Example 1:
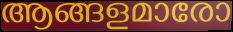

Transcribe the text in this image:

ആങ്ങളമാരോ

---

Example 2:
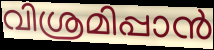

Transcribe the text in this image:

വിശ്രമിപ്പാൻ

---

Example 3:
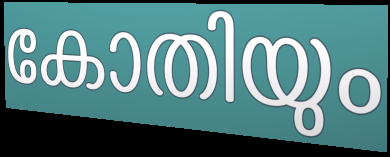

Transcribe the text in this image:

കോതിയും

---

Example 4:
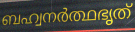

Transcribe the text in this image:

ബഹ്വനർത്ഥഭൃത്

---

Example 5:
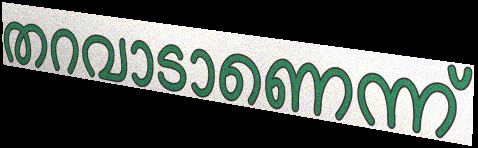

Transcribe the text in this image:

തറവാടാണെന്ന്